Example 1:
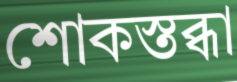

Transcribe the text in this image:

শোকস্তব্ধা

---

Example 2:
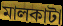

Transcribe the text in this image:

মালকাটা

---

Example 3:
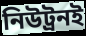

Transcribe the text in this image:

নিউট্রনই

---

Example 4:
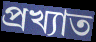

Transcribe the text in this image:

প্রখ্যাত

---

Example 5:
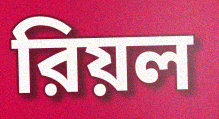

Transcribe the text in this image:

রিয়ল